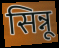
सिन्नू